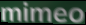
mimeo